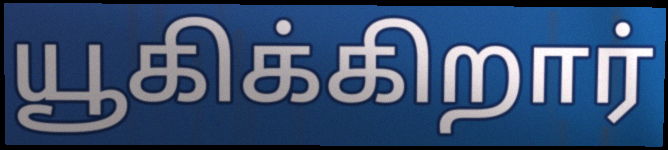
யூகிக்கிறார்